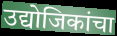
उद्योजिकांचा